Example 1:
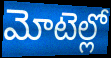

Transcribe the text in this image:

మోటెల్లో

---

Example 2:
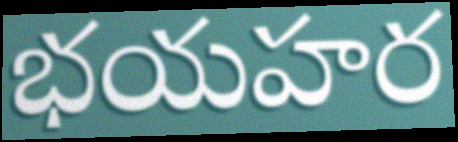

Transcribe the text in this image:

భయహర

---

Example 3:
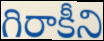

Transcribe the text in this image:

గిరాకీని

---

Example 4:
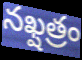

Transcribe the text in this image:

నఖ్షత్రం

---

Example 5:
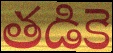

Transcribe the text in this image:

తడికె